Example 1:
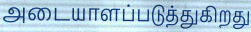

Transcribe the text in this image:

அடையாளப்படுத்துகிறது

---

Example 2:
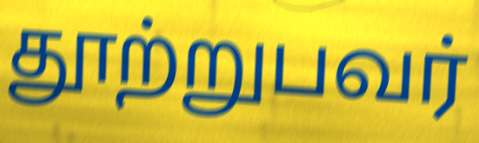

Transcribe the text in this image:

தூற்றுபவர்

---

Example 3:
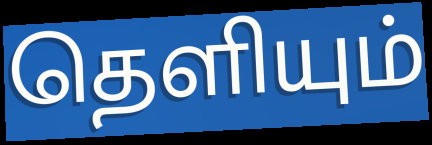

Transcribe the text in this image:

தெளியும்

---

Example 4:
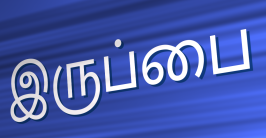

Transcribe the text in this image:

இருப்பை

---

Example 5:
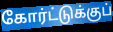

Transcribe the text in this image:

கோர்ட்டுக்குப்